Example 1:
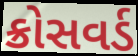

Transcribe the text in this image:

ક્રોસવર્ડ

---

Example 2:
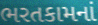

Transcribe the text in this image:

ભરતકામનાં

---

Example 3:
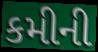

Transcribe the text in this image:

કમીની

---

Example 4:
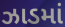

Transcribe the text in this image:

ઝાડમાં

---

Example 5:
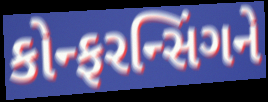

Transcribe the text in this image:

કોન્ફરન્સિંગને